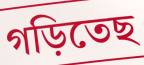
গড়িতেছ